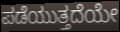
ಪಡೆಯುತ್ತದೆಯೇ